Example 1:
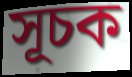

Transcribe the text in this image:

সূচক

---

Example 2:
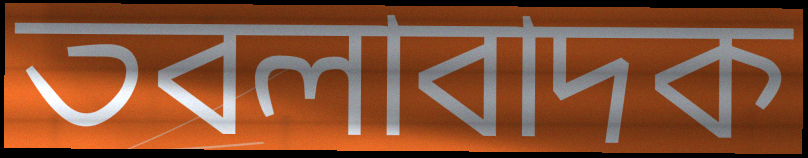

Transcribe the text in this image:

তবলাবাদক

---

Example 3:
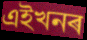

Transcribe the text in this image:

এইখনৰ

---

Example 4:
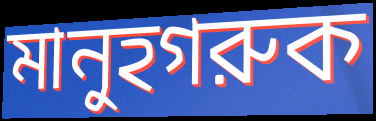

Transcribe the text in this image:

মানুহগৰুক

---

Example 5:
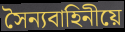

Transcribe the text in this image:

সৈন্যবাহিনীয়ে